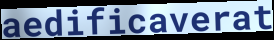
aedificaverat